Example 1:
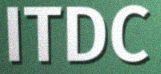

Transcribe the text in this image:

ITDC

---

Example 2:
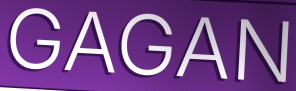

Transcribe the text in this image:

GAGAN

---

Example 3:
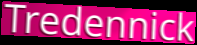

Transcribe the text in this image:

Tredennick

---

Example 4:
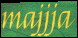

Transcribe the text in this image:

majjja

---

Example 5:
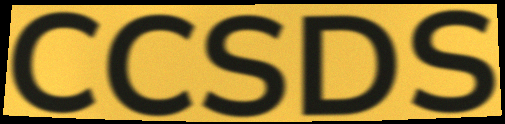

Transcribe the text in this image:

CCSDS